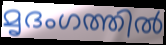
മൃദംഗത്തിൽ